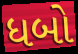
ધબો